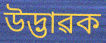
উদ্ভাৱক